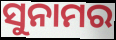
ସୁନାମର